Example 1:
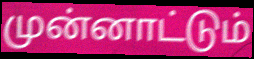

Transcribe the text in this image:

முன்னாட்டும்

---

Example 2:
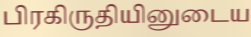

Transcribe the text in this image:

பிரகிருதியினுடைய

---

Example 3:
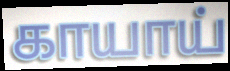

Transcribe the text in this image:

காயாய்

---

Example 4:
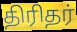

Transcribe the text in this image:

திரிதர்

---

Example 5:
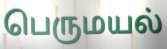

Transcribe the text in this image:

பெருமயல்